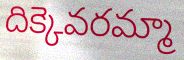
దిక్కెవరమ్మా